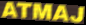
ATMAJ